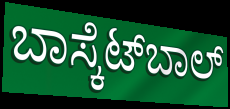
ಬಾಸ್ಕೆಟ್‍ಬಾಲ್